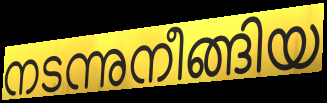
നടന്നുനീങ്ങിയ